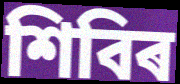
শিবিৰ